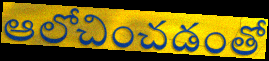
ఆలోచించడంతో